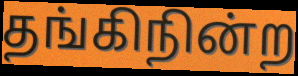
தங்கிநின்ற